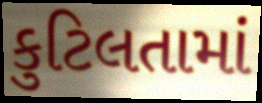
કુટિલતામાં